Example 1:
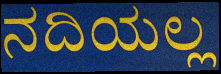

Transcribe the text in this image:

ನದಿಯಲ್ಲ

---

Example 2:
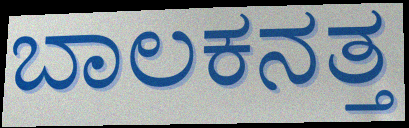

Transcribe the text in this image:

ಬಾಲಕನತ್ತ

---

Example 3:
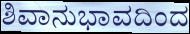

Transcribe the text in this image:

ಶಿವಾನುಭಾವದಿಂದ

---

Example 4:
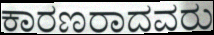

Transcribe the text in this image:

ಕಾರಣರಾದವರು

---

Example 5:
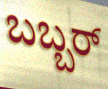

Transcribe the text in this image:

ಬಬ್ಬರ್